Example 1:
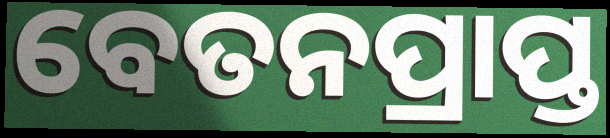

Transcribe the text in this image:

ବେତନପ୍ରାପ୍ତ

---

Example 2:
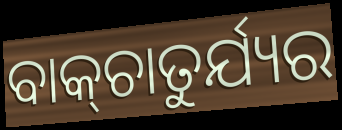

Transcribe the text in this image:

ବାକ୍‍ଚାତୁର୍ଯ୍ୟର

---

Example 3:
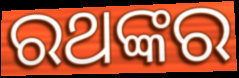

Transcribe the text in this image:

ରଥଙ୍କର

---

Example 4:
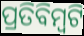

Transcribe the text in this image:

ପ୍ରତିବିମ୍ବଟି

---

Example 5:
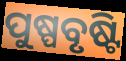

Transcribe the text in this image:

ପୁଷ୍ପବୃଷ୍ଟି